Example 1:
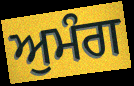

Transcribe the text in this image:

ਅੁਮੰਗ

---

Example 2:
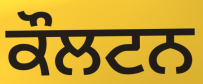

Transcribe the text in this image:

ਕੌਲਟਨ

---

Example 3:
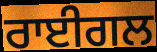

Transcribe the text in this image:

ਰਾਈਗਲ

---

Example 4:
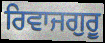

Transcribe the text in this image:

ਰਿਵਾਜਗੁਰੂ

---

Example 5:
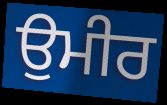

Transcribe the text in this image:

ਉਮੀਰ